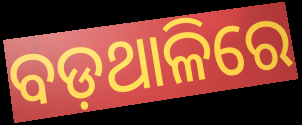
ବଡ଼ଥାଳିରେ